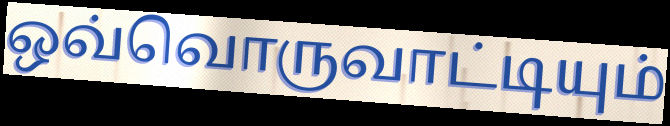
ஒவ்வொருவாட்டியும்